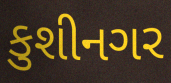
કુશીનગર